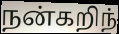
நன்கறிந்